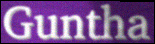
Guntha